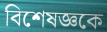
বিশেষজ্ঞকে